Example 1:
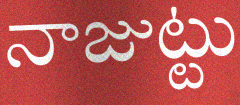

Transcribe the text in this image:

నాజుట్టు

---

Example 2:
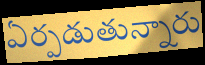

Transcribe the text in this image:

ఏర్పడుతున్నారు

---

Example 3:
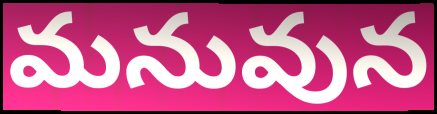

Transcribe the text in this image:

మనువున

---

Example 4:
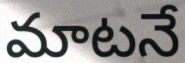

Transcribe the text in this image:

మాటనే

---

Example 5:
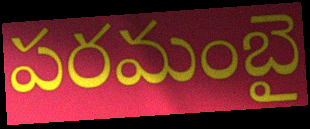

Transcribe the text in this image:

పరమంబై